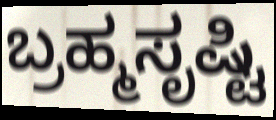
ಬ್ರಹ್ಮಸೃಷ್ಟಿ